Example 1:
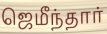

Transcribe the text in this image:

ஜெமீந்தார்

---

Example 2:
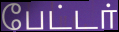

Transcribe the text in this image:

பேட்டர்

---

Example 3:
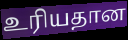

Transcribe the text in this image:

உரியதான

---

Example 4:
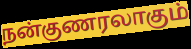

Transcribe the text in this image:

நன்குணரலாகும்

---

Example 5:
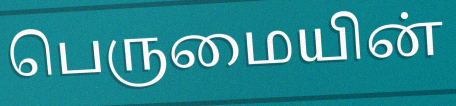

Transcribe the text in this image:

பெருமையின்